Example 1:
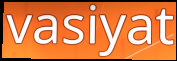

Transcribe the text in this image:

vasiyat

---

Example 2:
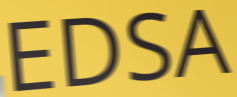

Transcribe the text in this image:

EDSA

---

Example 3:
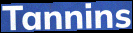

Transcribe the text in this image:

Tannins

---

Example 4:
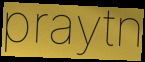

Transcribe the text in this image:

praytn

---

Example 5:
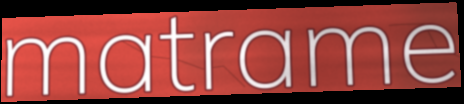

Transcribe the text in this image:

matrame